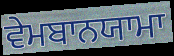
ਵੇਮਬਾਨਯਾਮਾ